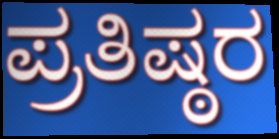
ಪ್ರತಿಷ್ಠರ